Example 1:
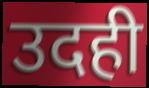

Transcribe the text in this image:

उदही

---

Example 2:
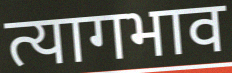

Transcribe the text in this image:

त्यागभाव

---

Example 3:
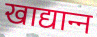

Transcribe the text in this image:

खाद्यान्‍न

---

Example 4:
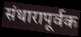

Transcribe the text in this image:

संथारापूर्वक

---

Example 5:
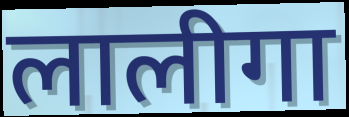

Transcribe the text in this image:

लालीगा